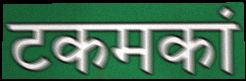
टकमकां